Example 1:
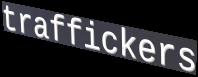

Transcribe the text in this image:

traffickers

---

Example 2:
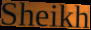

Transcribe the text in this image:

Sheikh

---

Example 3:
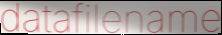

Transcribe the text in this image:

datafilename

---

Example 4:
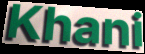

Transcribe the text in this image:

Khani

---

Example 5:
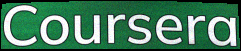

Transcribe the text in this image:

Coursera